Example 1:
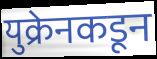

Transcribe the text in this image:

युक्रेनकडून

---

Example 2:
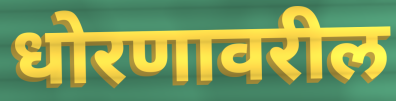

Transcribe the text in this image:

धोरणावरील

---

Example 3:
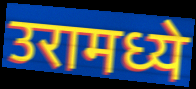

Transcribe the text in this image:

उरामध्ये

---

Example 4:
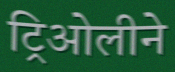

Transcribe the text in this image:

ट्रिओलीने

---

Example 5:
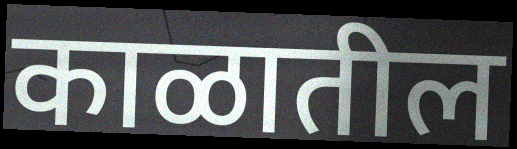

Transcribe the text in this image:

काळातील